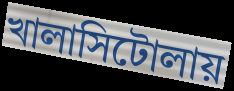
খালাসিটোলায়